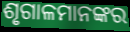
ଶୃଗାଳମାନଙ୍କର